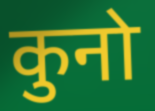
कुनो